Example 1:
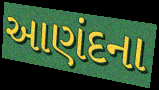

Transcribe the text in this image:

આણંદના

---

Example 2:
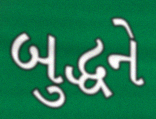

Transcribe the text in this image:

બુદ્ધને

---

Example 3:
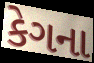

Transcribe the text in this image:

કેગના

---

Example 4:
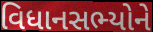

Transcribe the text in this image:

વિધાનસભ્યોને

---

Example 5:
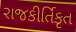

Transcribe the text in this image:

રાજકીર્તિકૃત